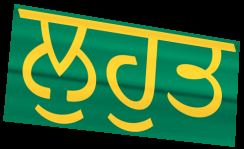
ਲੁਹੁਤ